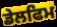
ਡੇਲਫਿਮ